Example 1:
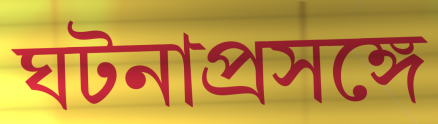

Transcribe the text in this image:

ঘটনাপ্রসঙ্গে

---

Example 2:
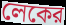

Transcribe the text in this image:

লেকের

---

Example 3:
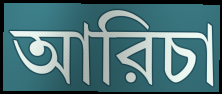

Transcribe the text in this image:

আরিচা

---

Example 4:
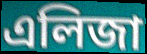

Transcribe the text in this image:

এলিজা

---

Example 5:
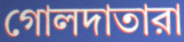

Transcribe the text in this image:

গোলদাতারা